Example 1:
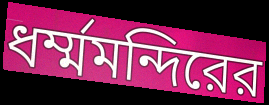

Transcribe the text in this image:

ধর্ম্মমন্দিরের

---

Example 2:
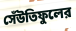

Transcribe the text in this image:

সেঁউতিফুলের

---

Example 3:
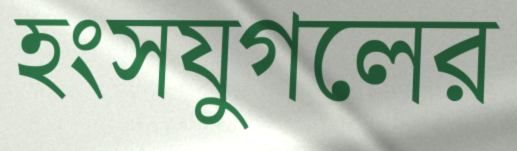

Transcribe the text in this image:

হংসযুগলের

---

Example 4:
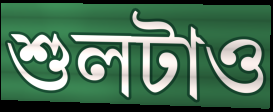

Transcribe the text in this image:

শুলটাও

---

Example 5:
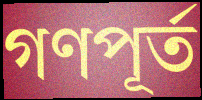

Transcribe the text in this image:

গণপূর্ত